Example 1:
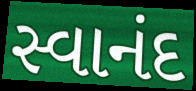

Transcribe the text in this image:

સ્વાનંદ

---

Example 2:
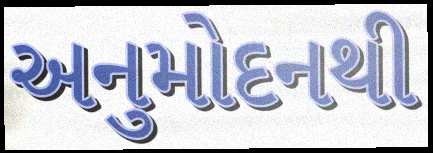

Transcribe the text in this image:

અનુમોદનથી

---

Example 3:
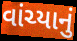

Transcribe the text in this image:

વાંચ્યાનું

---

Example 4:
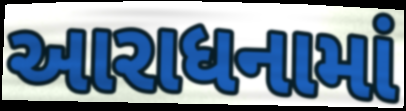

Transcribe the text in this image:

આરાધનામાં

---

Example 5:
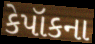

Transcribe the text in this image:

કેપૉકના